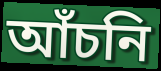
আঁচনি